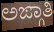
ಅಙ್ಗಾತಿ